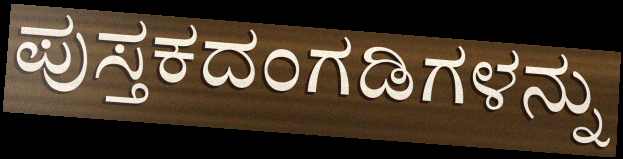
ಪುಸ್ತಕದಂಗಡಿಗಳನ್ನು